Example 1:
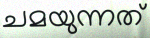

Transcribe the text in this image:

ചമയുന്നത്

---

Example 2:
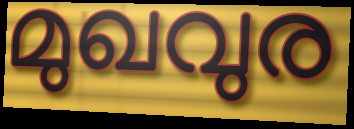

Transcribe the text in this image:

മുഖവുര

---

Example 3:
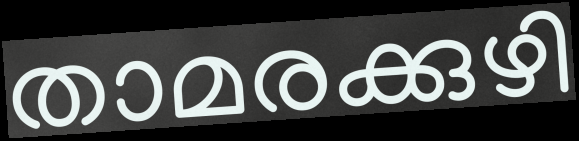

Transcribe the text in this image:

താമരക്കുഴി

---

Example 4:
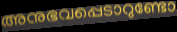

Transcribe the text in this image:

അനുഭവപ്പെടാറുണ്ടോ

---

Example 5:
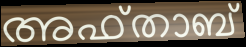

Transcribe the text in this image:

അഫ്താബ്